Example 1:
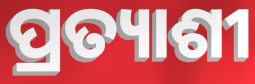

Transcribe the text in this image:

ପ୍ରତ୍ୟାଶୀ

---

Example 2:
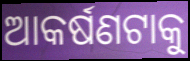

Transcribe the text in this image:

ଆକର୍ଷଣଟାକୁ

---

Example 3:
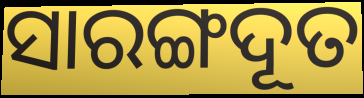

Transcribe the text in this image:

ସାରଙ୍ଗଦୂତ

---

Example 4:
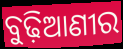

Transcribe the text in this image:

ବୁଢ଼ିଆଣୀର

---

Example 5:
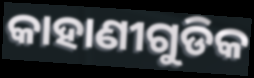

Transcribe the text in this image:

କାହାଣୀଗୁଡିକ